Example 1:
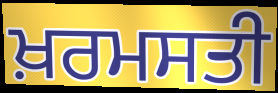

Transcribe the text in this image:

ਖ਼ਰਮਸਤੀ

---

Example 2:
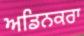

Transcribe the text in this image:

ਅਡਿਨਕਰਾ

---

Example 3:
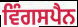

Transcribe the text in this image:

ਵਿੰਗਸਪੈਨ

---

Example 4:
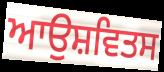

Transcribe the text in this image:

ਆਉਸ਼ਵਿਤਸ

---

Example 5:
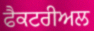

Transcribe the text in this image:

ਫੈਕਟਰੀਅਲ